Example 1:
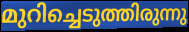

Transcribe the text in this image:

മുറിച്ചെടുത്തിരുന്നു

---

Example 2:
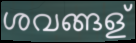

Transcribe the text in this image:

ശവങ്ങള്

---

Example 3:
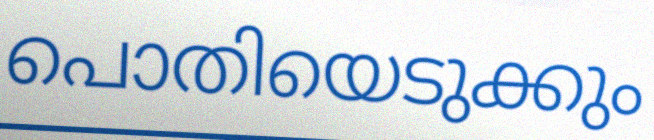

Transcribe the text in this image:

പൊതിയെടുക്കും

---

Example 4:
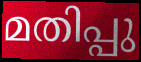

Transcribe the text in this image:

മതിപ്പു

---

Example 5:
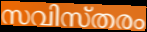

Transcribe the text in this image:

സവിസ്തരം